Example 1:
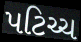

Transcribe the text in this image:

પટિચ્ચ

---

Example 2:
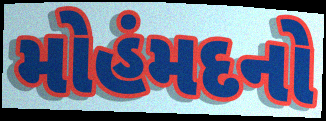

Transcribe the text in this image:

મોહંમદનો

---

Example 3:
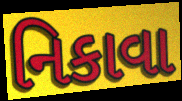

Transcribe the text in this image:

નિકાવા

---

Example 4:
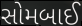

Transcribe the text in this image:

સોમબાઈ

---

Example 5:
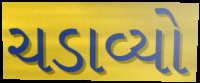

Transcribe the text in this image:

ચડાવ્યો